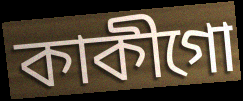
কাকীগো